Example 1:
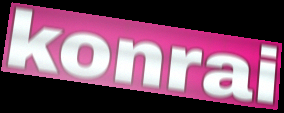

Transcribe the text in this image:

konrai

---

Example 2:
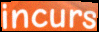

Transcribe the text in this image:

incurs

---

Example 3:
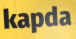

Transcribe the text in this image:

kapda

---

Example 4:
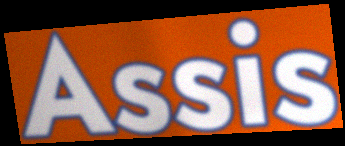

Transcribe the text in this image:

Assis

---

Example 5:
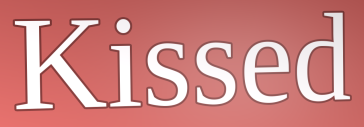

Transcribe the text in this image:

Kissed